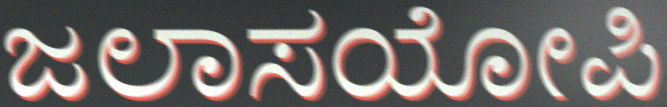
ಜಲಾಸಯೋಪಿ